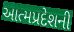
આત્મપ્રદેશની